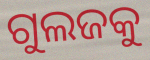
ଗୁଲଜକୁ